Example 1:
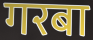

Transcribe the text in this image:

गरबा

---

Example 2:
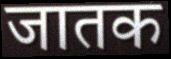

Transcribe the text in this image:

जातक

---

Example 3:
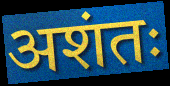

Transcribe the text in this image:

अशंतः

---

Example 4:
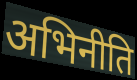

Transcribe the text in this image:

अभिनीति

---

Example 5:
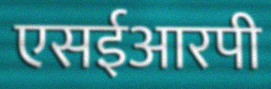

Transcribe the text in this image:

एसईआरपी